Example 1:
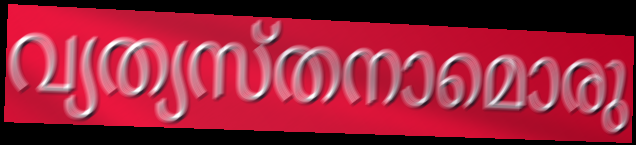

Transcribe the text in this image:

വ്യത്യസ്തനാമൊരു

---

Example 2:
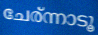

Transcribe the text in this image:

ചേര്ന്നാടൂ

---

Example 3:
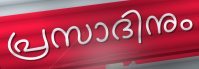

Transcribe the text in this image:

പ്രസാദിനും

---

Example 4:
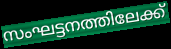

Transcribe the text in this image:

സംഘട്ടനത്തിലേക്ക്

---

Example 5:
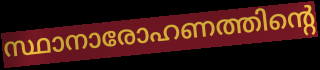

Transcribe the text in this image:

സ്ഥാനാരോഹണത്തിന്റെ